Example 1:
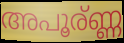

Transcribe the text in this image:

അപൂര്ണ്ണ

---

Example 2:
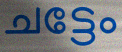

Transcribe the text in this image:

ചട്ടേം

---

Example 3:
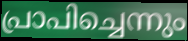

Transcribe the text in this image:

പ്രാപിച്ചെന്നും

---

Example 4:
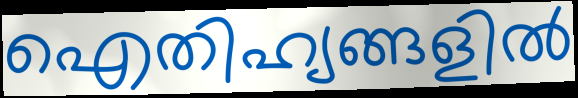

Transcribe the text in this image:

ഐതിഹ്യങ്ങളിൽ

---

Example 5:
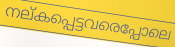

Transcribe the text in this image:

നല്കപ്പെട്ടവരെപ്പോലെ